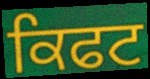
ਕਿਫਟ